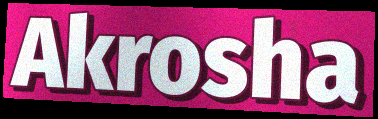
Akrosha